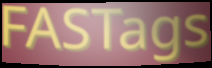
FASTags